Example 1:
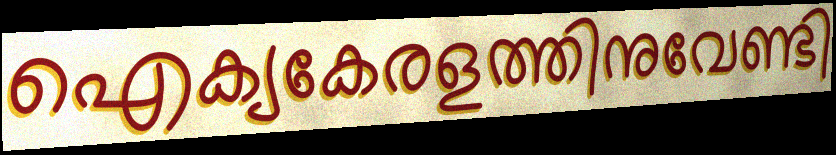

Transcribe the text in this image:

ഐക്യകേരളത്തിനുവേണ്ടി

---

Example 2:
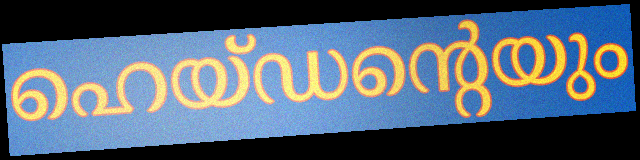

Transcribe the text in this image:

ഹെയ്ഡന്റെയും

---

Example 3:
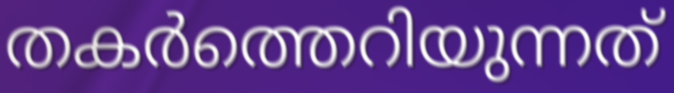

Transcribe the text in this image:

തകർത്തെറിയുന്നത്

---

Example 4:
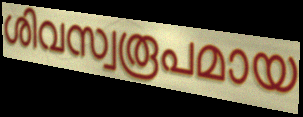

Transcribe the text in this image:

ശിവസ്വരൂപമായ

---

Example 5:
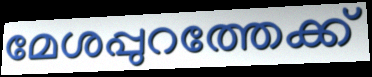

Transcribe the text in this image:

മേശപ്പുറത്തേക്ക്